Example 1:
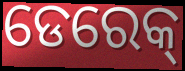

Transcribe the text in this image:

ଡେରେକ୍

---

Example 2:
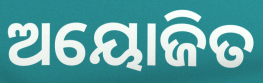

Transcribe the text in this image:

ଅୟୋଜିତ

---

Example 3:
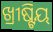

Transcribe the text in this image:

ଖ୍ରୀଷ୍ଟିୟ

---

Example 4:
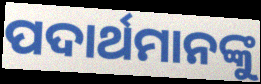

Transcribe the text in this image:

ପଦାର୍ଥମାନଙ୍କୁ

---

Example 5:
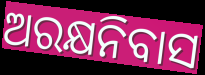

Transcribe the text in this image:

ଅରକ୍ଷନିବାସ